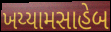
ખય્યામસાહેબ